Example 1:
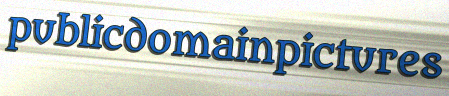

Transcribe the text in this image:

publicdomainpictures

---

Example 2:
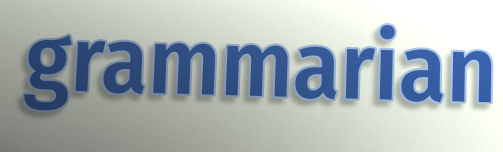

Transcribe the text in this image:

grammarian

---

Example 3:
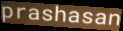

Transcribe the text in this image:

prashasan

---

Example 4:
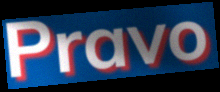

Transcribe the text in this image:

Pravo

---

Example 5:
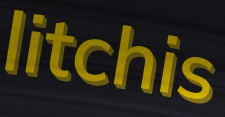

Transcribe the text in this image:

litchis